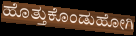
ಹೊತ್ತುಕೊಂಡುಹೋಗಿ